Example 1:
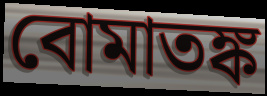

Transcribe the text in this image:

বোমাতঙ্ক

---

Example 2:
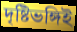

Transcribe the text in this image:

দৃষ্টিভঙ্গিই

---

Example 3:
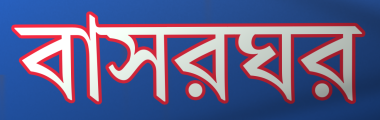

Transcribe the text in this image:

বাসরঘর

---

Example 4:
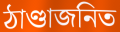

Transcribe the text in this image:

ঠাণ্ডাজনিত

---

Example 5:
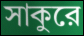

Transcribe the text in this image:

সাকুরে